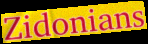
Zidonians